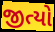
જીત્યો